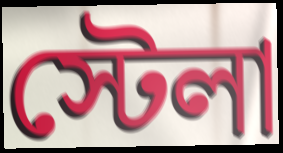
স্টেলা